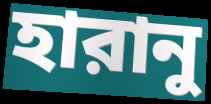
হারানু